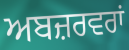
ਅਬਜ਼ਰਵਰਾਂ